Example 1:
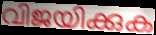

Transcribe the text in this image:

വിജയിക്കുക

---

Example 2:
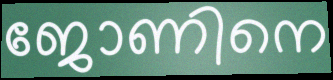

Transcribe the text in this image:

ജോണിനെ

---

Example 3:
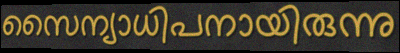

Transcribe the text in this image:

സൈന്യാധിപനായിരുന്നു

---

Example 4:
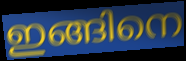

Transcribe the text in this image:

ഇങ്ങിനെ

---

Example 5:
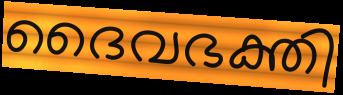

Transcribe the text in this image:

ദൈവഭക്തി